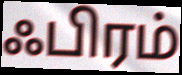
ஃபிரம்